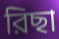
রিছা